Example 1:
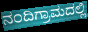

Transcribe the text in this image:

ನಂದಿಗ್ರಾಮದಲ್ಲಿ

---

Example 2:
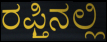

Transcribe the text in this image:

ರಫ್ತಿನಲ್ಲಿ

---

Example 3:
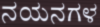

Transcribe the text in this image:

ನಯನಗಳ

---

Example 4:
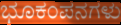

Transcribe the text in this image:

ಭೂಕಂಪನಗಳು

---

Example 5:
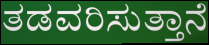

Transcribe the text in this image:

ತಡವರಿಸುತ್ತಾನೆ